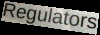
Regulators